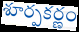
శూర్పకర్ణం